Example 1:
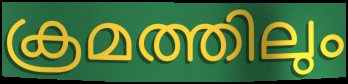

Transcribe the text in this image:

ക്രമത്തിലും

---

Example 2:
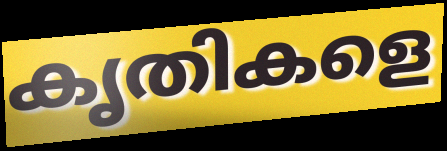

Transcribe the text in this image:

കൃതികളെ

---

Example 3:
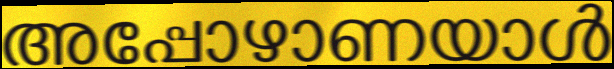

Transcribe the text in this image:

അപ്പോഴാണയാൾ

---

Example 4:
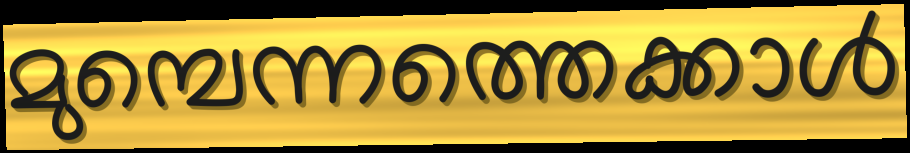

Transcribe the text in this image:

മുമ്പെന്നത്തെക്കാൾ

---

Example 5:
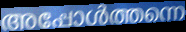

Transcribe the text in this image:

അപ്പോൾത്തന്നെ